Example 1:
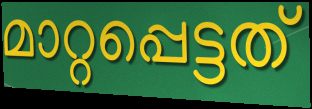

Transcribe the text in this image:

മാറ്റപ്പെട്ടത്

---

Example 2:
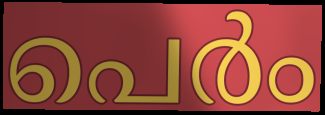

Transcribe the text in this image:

പെർം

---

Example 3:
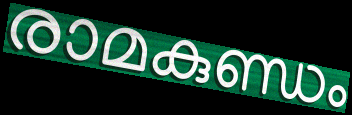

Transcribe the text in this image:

രാമകുണ്ഡം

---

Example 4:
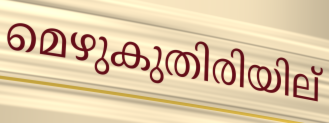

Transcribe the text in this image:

മെഴുകുതിരിയില്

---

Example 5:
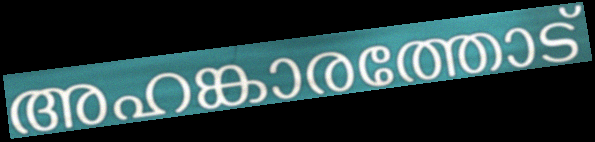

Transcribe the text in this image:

അഹങ്കാരത്തോട്